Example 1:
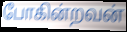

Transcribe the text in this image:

போகின்றவன்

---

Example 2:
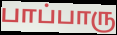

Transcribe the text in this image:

பாப்பாரு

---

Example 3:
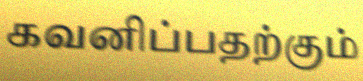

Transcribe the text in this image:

கவனிப்பதற்கும்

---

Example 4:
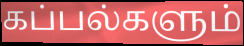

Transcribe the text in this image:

கப்பல்களும்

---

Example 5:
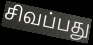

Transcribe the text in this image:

சிவப்பது